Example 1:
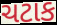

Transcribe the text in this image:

ચટાક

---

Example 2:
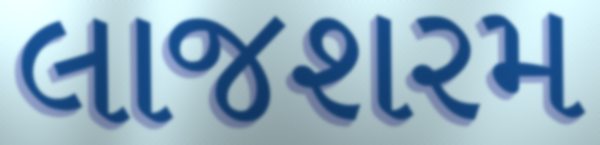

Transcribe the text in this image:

લાજશરમ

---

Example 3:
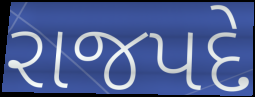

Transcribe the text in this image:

રાજપદે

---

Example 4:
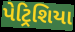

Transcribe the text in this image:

પેટ્રિશિયા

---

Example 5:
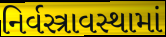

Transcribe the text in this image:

નિર્વસ્ત્રાવસ્થામાં